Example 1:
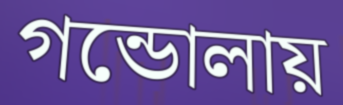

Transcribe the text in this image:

গন্ডোলায়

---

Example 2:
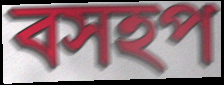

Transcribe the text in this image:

বসহপ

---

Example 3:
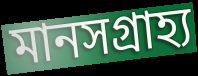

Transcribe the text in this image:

মানসগ্রাহ্য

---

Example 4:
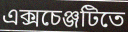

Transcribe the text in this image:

এক্সচেঞ্জটিতে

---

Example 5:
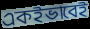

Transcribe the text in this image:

একইভাবেই